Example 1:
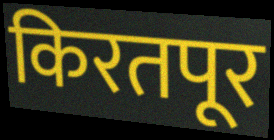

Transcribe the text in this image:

किरतपूर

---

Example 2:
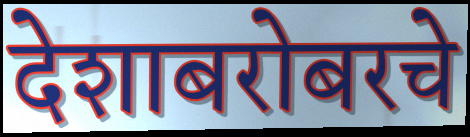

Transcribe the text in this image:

देशाबरोबरचे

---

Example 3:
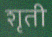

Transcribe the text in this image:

शृती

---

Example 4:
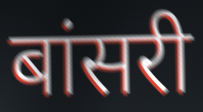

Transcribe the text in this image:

बांसरी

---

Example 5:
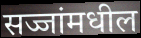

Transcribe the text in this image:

सज्जांमधील